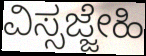
ವಿಸ್ಸಜ್ಜೇಹಿ